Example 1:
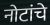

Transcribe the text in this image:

नोटांचे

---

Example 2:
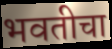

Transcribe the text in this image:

भवतीचा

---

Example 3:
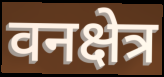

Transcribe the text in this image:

वनक्षेत्र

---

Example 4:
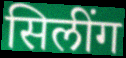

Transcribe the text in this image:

सिलींग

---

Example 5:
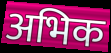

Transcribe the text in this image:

अभिक